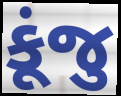
કૂંજુ